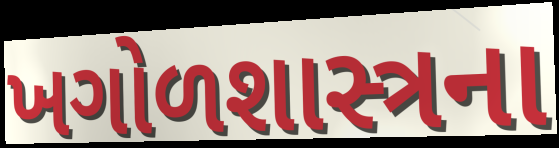
ખગોળશાસ્ત્રના